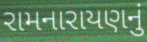
રામનારાયણનું